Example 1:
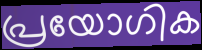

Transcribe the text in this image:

പ്രയോഗിക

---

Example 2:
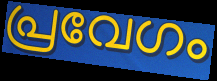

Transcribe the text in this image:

പ്രവേഗം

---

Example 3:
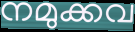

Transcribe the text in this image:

നമുക്കവ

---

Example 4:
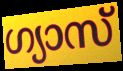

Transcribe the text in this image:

ഗ്യാസ്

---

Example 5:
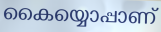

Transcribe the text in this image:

കൈയ്യൊപ്പാണ്